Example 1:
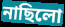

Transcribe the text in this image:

নাছিলো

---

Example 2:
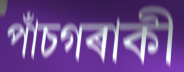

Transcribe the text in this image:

পাঁচগৰাকী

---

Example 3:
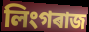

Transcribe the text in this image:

লিংগৰাজ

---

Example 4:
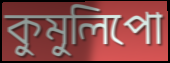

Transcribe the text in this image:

কুমুলিপো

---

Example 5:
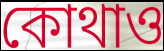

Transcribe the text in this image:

কোথাও